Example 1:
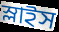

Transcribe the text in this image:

স্লাইস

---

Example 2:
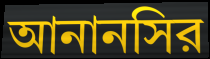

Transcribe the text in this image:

আনানসির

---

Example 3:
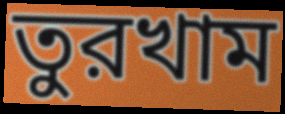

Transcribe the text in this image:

তুরখাম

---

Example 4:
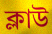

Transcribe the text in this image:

ক্লাউ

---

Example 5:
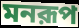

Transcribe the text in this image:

মনরূপ